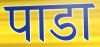
पाडा